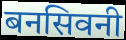
बनसिवनी